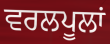
ਵਰਲਪੂਲਾਂ